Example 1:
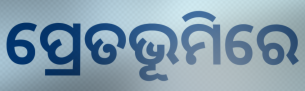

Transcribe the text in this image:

ପ୍ରେତଭୂମିରେ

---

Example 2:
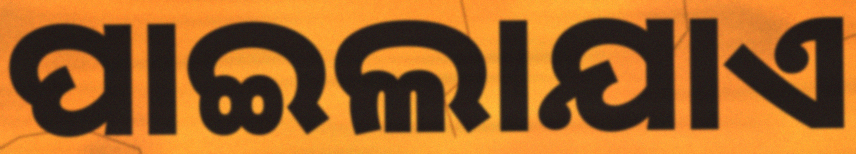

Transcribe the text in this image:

ପାଇଲାଯାଏ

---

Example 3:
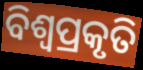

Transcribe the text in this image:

ବିଶ୍ଵପ୍ରକୃତି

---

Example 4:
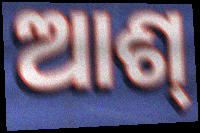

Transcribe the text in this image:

ଆଶ୍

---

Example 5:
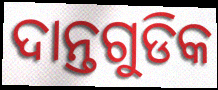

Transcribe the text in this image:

ଦାନ୍ତଗୁଡିକ